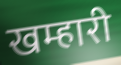
खम्हारी